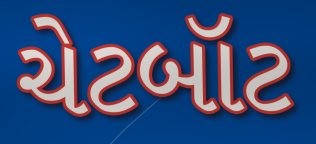
ચેટબૉટ